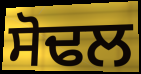
ਸੋਢਲ